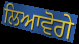
ਲਿਆਵੋਗੇ